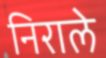
निराले